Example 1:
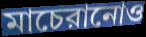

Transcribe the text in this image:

মাচেরানোও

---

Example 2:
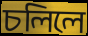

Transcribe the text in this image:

চলিলে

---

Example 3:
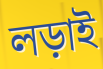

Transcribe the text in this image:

লড়াই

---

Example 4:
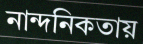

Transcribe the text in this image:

নান্দনিকতায়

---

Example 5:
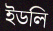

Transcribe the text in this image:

ইডলি